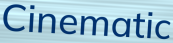
Cinematic